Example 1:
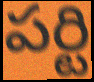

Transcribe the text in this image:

పర్టి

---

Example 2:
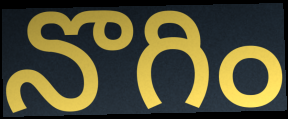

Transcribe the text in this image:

నొగిం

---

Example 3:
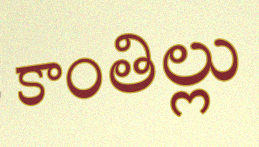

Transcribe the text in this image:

కాంతిల్లు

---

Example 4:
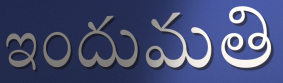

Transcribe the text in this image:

ఇందుమతి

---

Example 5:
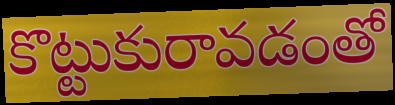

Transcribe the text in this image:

కొట్టుకురావడంతో